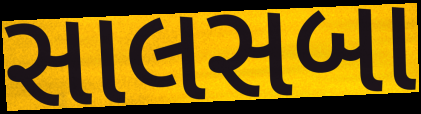
સાલસબા